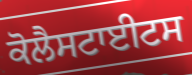
ਕੋਲੈਸਟਾਈਟਸ